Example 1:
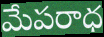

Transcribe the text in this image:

మేపరాధ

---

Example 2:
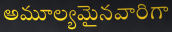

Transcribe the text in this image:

అమూల్యమైనవారిగా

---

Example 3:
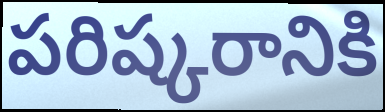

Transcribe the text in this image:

పరిష్కరానికి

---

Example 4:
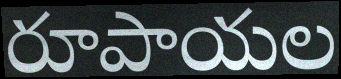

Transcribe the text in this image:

రూపాయల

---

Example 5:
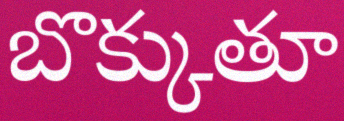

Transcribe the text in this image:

బొక్కుతూ